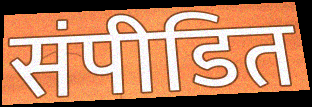
संपीडित